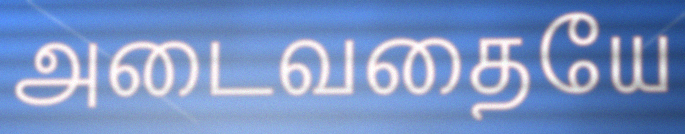
அடைவதையே